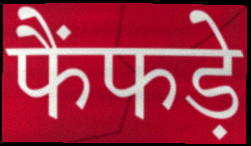
फैंफड़े